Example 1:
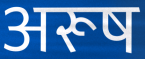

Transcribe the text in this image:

अरूष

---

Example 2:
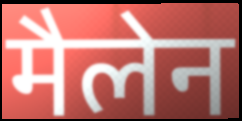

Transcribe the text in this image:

मैलेन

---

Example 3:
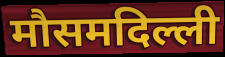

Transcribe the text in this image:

मौसमदिल्ली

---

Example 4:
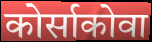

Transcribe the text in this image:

कोर्साकोवा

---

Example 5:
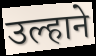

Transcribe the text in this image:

उल्हाने